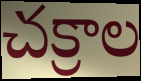
చక్రాల